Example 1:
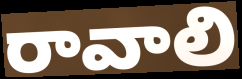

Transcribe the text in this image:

రావాలి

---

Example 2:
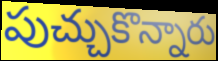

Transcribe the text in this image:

పుచ్చుకొన్నారు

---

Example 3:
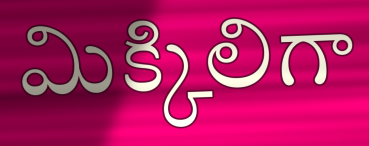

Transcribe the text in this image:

మిక్కిలిగా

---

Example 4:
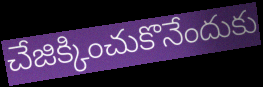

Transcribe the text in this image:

చేజిక్కించుకొనేందుకు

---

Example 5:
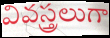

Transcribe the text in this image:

వివస్త్రలుగా